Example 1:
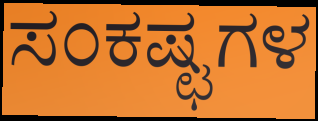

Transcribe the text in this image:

ಸಂಕಷ್ಟಗಳ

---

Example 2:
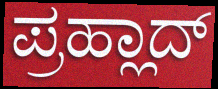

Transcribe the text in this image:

ಪ್ರಹ್ಲಾದ್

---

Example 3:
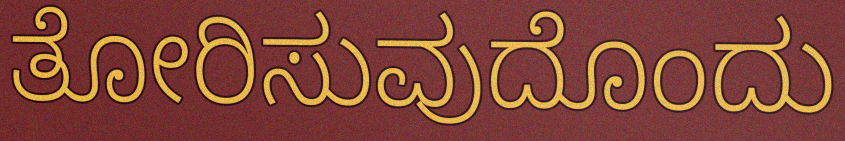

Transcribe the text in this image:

ತೋರಿಸುವುದೊಂದು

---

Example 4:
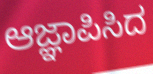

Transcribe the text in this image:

ಆಜ್ಞಾಪಿಸಿದ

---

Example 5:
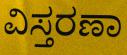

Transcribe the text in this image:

ವಿಸ್ತರಣಾ